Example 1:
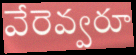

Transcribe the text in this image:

వేరెవ్వరూ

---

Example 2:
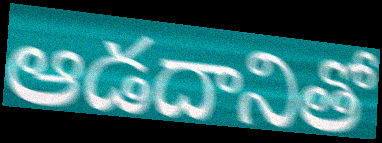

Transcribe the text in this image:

ఆడదానితో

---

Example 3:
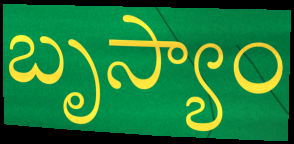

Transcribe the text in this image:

బృస్యాం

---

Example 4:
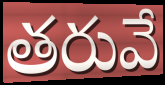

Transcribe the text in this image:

తరువే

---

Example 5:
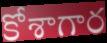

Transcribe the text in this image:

కోశాగార